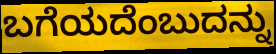
ಬಗೆಯದೆಂಬುದನ್ನು